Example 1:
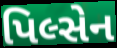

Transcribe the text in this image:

પિલ્સેન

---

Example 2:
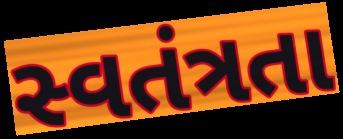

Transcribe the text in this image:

સ્વતંત્રતા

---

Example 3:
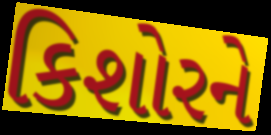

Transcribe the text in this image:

કિશોરને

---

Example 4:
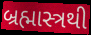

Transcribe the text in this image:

બ્રહ્માસ્ત્રથી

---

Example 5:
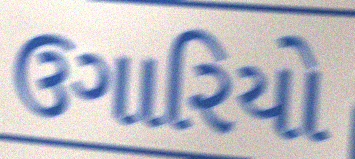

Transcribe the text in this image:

ઉગારિયો